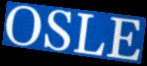
OSLE